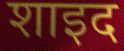
शाइद